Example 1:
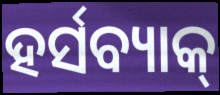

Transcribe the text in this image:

ହର୍ସବ୍ୟାକ୍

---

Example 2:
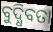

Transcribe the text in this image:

ବୁଦ୍ଧିବତା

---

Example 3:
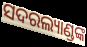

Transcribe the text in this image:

ସଦରଲ୍ୟାଣ୍ଡଙ୍କ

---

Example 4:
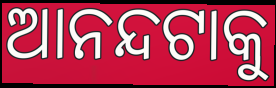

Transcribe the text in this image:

ଆନନ୍ଦଟାକୁ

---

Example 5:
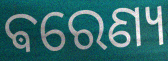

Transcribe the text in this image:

ଵରେଣ୍ୟ